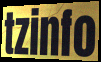
tzinfo